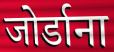
जोर्डाना